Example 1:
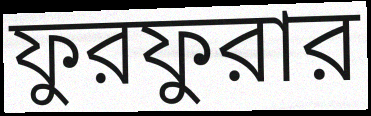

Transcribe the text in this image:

ফুরফুরার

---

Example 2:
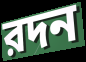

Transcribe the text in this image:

রদন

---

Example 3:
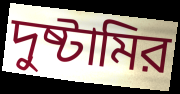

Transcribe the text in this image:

দুষ্টামির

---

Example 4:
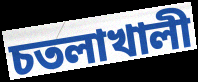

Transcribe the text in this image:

চতলাখালী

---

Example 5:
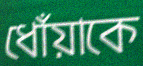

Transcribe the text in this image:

ধোঁয়াকে